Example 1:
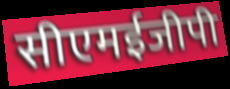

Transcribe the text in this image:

सीएमईजीपी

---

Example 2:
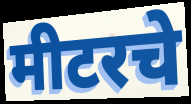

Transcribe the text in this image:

मीटरचे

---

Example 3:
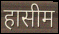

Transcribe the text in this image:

हासीम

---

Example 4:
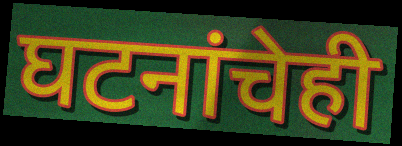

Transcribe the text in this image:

घटनांचेही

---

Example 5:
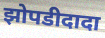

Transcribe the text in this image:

झोपडीदादा